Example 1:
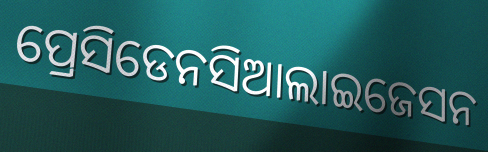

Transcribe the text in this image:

ପ୍ରେସିଡେନସିଆଲାଇଜେସନ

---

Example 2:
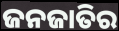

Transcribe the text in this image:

ଜନଜାତିର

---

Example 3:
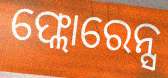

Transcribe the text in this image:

ଫ୍ଲୋରେନ୍ସ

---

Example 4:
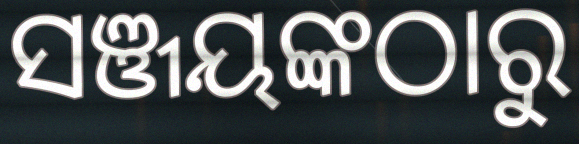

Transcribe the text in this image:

ସଞ୍ଜୟଙ୍କଠାରୁ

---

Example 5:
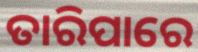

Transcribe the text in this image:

ତାରିପାରେ